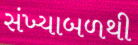
સંખ્યાબળથી